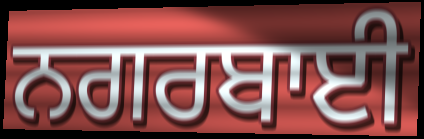
ਨਗਰਬਾਈ